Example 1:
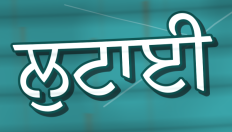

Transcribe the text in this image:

ਲੁਟਾਈ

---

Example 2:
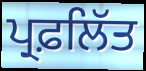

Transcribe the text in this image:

ਪ੍ਰਫ਼ਲਿੱਤ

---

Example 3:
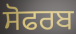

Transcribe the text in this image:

ਸੋਫਰਬ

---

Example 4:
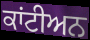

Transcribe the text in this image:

ਕਾਂਟੀਅਨ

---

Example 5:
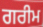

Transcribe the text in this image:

ਗਰੀਮ